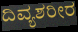
ದಿವ್ಯಶರೀರ